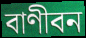
বাণীবন